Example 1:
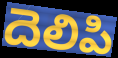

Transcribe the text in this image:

దెలిపి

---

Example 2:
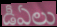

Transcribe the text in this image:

డీఏలు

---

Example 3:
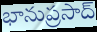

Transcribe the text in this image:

భానుప్రసాద్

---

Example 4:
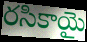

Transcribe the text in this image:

రసికాయై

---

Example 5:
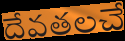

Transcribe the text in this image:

దేవతలచే